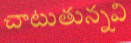
చాటుతున్నవి